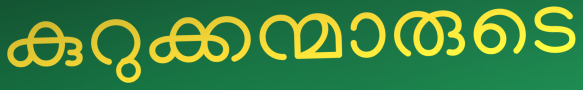
കുറുക്കന്മാരുടെ